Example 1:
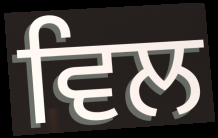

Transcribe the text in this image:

ਵਿਲ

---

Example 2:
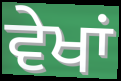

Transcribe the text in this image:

ਵੇਖਾਂ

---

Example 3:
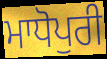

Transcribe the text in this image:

ਮਾਧੋਪੁਰੀ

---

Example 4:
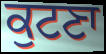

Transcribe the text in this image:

ਕੁਟਣਾ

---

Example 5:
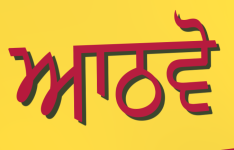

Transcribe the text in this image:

ਆਠਵੋ